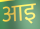
आइ